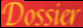
Dossier